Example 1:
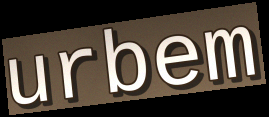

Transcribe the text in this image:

urbem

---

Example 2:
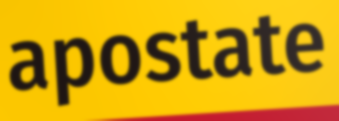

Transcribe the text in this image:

apostate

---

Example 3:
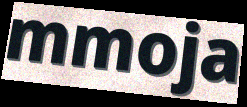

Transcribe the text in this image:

mmoja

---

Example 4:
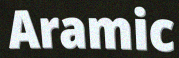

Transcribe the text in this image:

Aramic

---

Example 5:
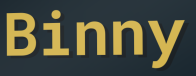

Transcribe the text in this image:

Binny